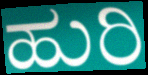
ಹುರಿ